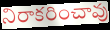
నిరాకరించావు